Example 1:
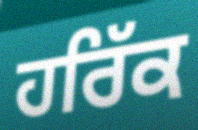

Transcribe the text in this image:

ਹਰਿੱਕ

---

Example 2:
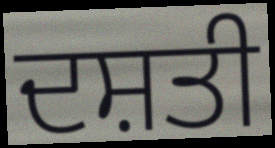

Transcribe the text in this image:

ਦਸ਼ਤੀ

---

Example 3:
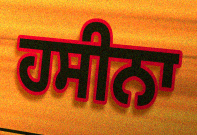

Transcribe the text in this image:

ਹਸੀਨਾ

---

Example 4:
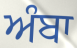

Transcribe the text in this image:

ਅੰਬਾ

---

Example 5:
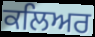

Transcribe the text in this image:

ਕਲਿਅਰ